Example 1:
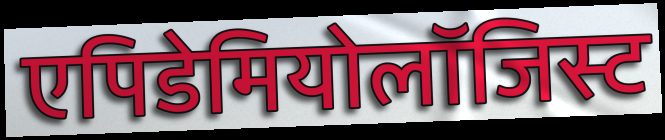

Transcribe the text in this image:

एपिडेमियोलॉजिस्ट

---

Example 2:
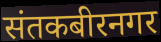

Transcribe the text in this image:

संतकबीरनगर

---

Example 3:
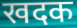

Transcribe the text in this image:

खदक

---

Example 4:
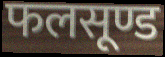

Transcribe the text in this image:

फलसूण्ड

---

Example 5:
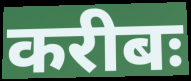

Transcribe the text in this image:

करीबः